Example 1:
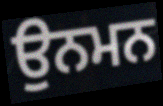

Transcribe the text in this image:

ਉਨਮਨ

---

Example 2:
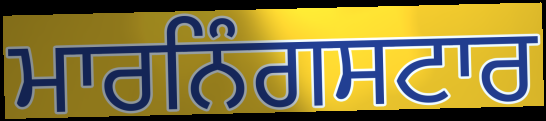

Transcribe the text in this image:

ਮਾਰਨਿੰਗਸਟਾਰ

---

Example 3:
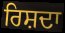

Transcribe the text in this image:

ਰਿਸ਼ਦਾ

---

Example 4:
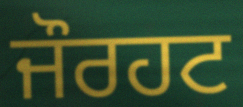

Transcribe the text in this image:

ਜੌਰਹਟ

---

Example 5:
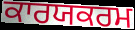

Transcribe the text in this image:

ਕਾਰਯਕਰਮ